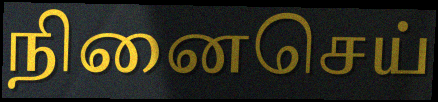
நினைசெய்